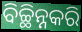
ବିଚ୍ଛିନ୍ନକରି